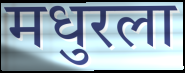
मधुरला